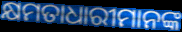
କ୍ଷମତାଧାରୀମାନଙ୍କ